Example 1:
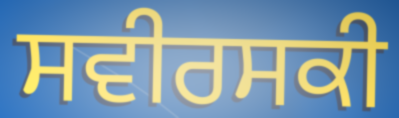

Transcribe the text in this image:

ਸਵੀਰਸਕੀ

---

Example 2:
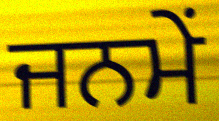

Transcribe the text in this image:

ਜਨਮੇਂ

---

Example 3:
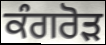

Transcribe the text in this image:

ਕੰਗਰੋੜ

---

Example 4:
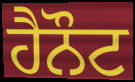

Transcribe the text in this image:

ਹੈਨੌਟ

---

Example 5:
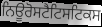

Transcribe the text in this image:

ਨਿਊਰੋਸਟੈਟਿਸਟਿਕਸ